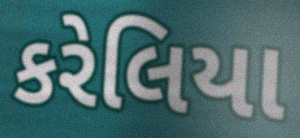
કરેલિયા